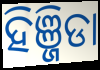
ହିଞ୍ଜିଡା